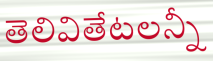
తెలివితేటలన్నీ